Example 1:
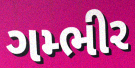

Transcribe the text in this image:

ગમ્ભીર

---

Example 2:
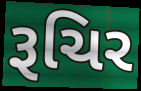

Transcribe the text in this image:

રૂચિર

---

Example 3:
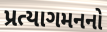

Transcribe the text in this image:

પ્રત્યાગમનનો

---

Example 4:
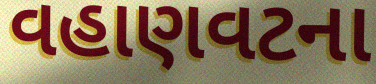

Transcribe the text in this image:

વહાણવટના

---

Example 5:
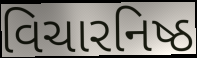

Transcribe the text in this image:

વિચારનિષ્ઠ